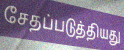
சேதப்படுத்தியது